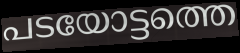
പടയോട്ടത്തെ